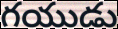
గయుడు